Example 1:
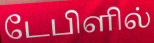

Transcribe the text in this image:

டேபிளில்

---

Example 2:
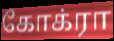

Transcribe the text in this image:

கோக்ரா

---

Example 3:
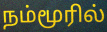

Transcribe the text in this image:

நம்மூரில்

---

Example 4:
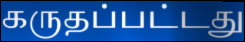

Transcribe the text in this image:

கருதப்பட்டது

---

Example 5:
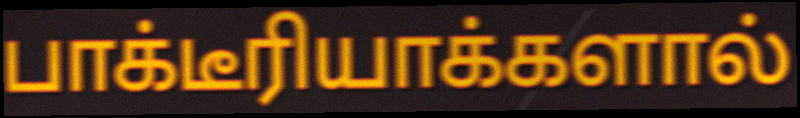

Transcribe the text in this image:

பாக்டீரியாக்களால்